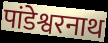
पांडेश्वरनाथ